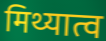
मिथ्यात्व